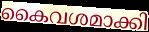
കൈവശമാക്കി